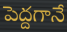
పెద్దగానే